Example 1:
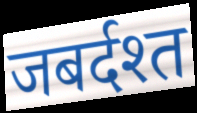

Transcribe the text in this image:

जबर्दश्त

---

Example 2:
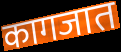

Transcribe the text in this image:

कागजात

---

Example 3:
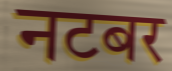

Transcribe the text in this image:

नटबर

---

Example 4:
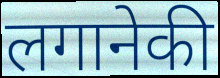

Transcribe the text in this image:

लगानेकी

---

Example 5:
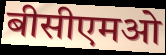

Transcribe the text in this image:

बीसीएमओ